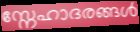
സ്നേഹാദരങ്ങൾ